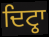
ਦਿਟ੍ਠਾ